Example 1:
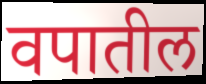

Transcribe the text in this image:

वपातील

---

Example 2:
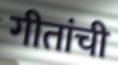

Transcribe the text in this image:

गीतांची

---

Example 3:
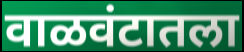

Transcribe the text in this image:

वाळवंटातला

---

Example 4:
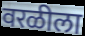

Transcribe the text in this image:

वरळीला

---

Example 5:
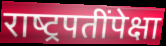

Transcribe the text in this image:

राष्ट्रपतींपेक्षा